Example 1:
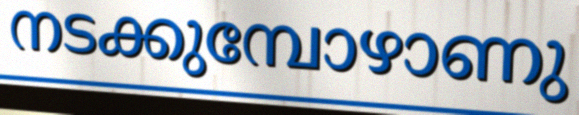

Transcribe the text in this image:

നടക്കുമ്പോഴാണു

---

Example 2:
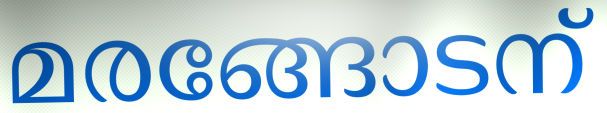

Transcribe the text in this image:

മരങ്ങോടന്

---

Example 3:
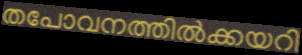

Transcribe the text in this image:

തപോവനത്തിൽക്കയറി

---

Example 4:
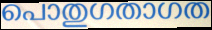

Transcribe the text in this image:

പൊതുഗതാഗത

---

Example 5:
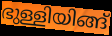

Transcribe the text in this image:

ഭുള്ളിയിങ്ങ്